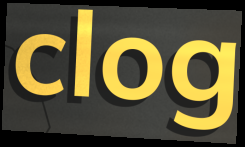
clog